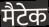
मैटेक